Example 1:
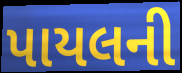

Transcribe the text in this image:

પાયલની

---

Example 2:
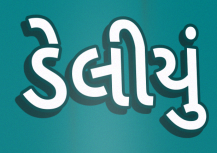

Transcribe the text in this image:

ડેલીયું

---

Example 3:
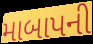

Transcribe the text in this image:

માબાપની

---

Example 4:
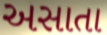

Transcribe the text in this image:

અસાતા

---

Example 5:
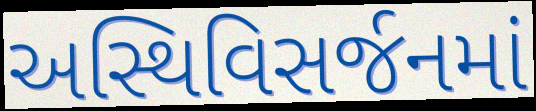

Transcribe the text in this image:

અસ્થિવિસર્જનમાં